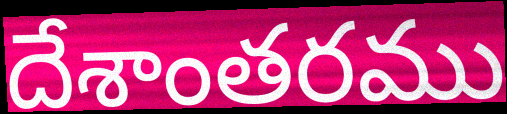
దేశాంతరము